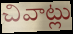
చివాట్లు